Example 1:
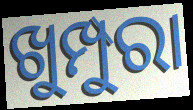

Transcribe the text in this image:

ଖୁମ୍ପୁରା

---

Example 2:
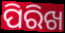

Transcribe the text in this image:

ପିରିଖ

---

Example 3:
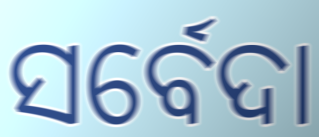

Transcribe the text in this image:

ସର୍ବେଦା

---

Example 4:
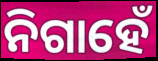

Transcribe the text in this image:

ନିଗାହେଁ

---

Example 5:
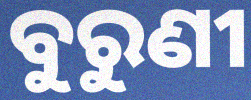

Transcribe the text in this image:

ବୁରୁଣୀ